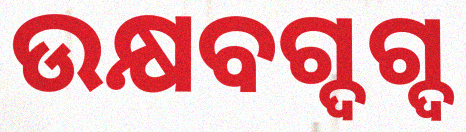
ଉକ୍ଷବଗ୍ଦଗ୍ଦ